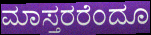
ಮಾಸ್ತರರೆಂದೂ